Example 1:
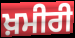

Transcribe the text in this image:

ਖ਼ਮੀਰੀ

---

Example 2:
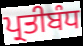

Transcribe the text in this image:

ਪ੍ਰਤੀਬੰਧ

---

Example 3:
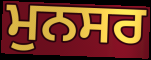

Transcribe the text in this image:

ਮੁਨਸਰ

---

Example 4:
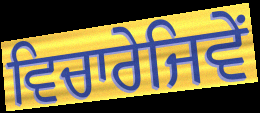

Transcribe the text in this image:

ਵਿਚਾਰੇਜਿਵੇਂ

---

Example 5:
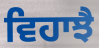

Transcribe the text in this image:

ਵਿਹਾਝੈ